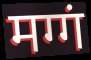
मग्गं